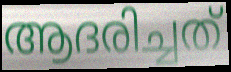
ആദരിച്ചത്